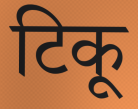
टिकू